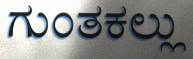
ಗುಂತಕಲ್ಲು